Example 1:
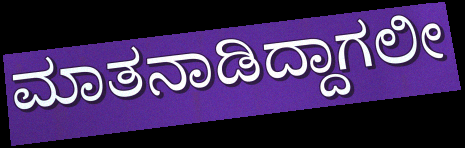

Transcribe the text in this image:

ಮಾತನಾಡಿದ್ದಾಗಲೀ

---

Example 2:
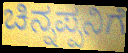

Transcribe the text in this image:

ಚಿನ್ನಪ್ಪನಿಗೆ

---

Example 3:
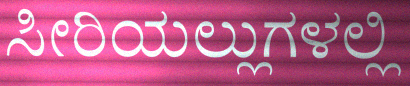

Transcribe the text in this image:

ಸೀರಿಯಲ್ಲುಗಳಲ್ಲಿ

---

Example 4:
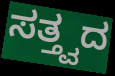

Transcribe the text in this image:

ಸತ್ತ್ವದ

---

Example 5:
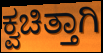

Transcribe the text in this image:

ಕ್ವಚಿತ್ತಾಗಿ